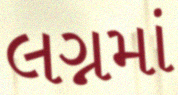
લગ્નમાં